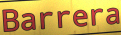
Barrera